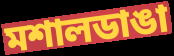
মশালডাঙা